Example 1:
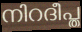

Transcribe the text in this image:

നിറദീപ്ത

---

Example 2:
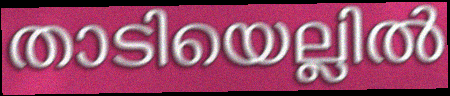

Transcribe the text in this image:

താടിയെല്ലിൽ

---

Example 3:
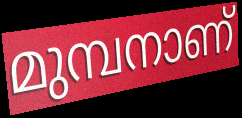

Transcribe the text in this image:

മുമ്പനാണ്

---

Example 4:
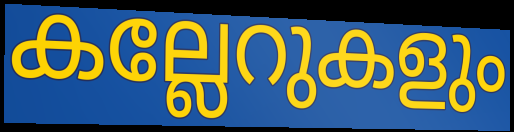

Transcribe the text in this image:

കല്ലേറുകളും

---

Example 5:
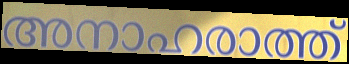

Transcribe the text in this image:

അനാഹരാത്ത്